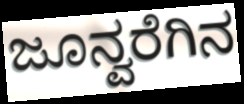
ಜೂನ್ವರೆಗಿನ